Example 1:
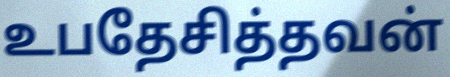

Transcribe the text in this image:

உபதேசித்தவன்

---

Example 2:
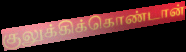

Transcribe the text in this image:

குலுக்கிக்கொண்டான்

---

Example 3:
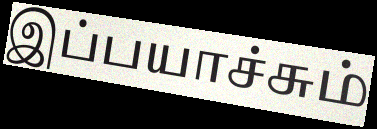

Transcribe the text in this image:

இப்பயாச்சும்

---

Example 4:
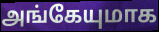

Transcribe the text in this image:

அங்கேயுமாக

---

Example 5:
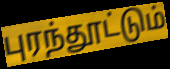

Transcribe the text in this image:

புரந்தூட்டும்